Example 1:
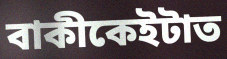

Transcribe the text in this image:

বাকীকেইটাত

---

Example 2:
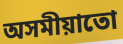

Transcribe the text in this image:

অসমীয়াতো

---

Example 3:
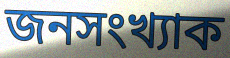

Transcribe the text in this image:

জনসংখ্যাক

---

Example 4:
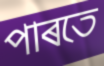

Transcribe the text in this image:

পাৰতে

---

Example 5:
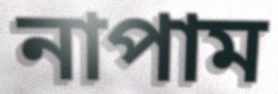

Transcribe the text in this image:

নাপাম